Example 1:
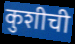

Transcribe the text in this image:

कुशीची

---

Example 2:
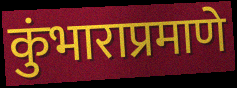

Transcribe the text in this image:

कुंभाराप्रमाणे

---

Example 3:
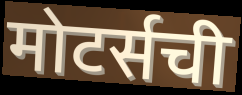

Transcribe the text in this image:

मोटर्सची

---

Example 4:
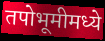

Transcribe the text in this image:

तपोभूमीमध्ये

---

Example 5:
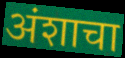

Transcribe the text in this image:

अंशाचा